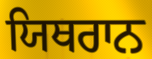
ਯਿਥਰਾਨ